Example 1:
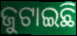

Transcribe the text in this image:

ଜୁଟାଇଛି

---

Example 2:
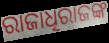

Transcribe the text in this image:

ରାଜାଧିରାଜଙ୍କ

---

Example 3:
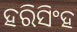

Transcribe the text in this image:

ହରିସିଂହ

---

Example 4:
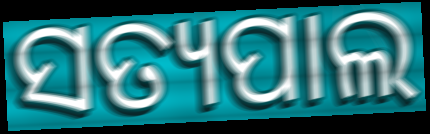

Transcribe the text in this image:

ସତ୍ୟପାଲ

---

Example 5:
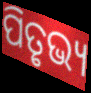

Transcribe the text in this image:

ପିତୃଭ୍ୟ